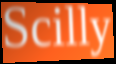
Scilly